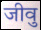
जीवु